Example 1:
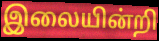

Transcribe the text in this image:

இலையின்றி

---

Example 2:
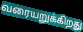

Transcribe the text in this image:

வரையறுக்கிறது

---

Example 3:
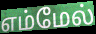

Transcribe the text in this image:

எம்மேல்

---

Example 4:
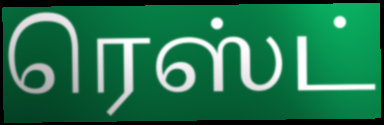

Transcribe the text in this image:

ரெஸ்ட்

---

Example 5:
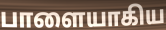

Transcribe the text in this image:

பாளையாகிய